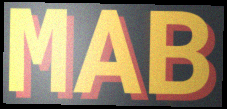
MAB